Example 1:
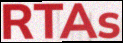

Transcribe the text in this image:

RTAs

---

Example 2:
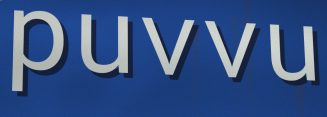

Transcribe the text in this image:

puvvu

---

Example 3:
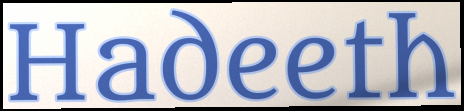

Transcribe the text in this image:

Hadeeth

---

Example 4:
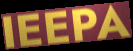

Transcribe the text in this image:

IEEPA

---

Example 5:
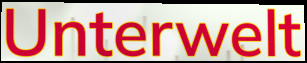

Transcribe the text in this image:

Unterwelt